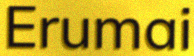
Erumai